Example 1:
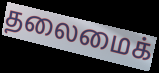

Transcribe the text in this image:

தலைமைக்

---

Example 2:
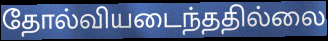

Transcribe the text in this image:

தோல்வியடைந்ததில்லை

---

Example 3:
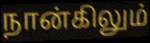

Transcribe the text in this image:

நான்கிலும்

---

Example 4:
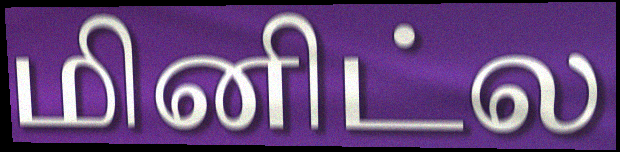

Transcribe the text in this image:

மினிட்ல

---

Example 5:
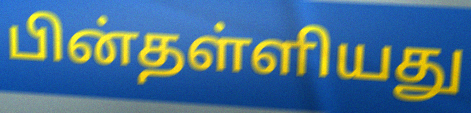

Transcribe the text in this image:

பின்தள்ளியது